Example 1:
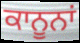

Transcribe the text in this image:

ਕਾਨੂਨਾਂ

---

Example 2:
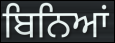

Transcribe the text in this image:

ਬਿਨਿਆਂ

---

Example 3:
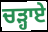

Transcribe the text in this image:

ਚੜ੍ਹਾਏ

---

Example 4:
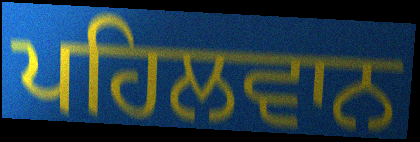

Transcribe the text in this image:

ਪਹਿਲਵਾਨ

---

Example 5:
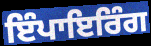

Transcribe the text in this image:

ਇੰਪਾਇਰਿੰਗ